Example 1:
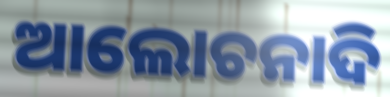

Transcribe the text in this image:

ଆଲୋଚନାଦି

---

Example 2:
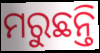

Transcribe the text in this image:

ମରୁଛନ୍ତି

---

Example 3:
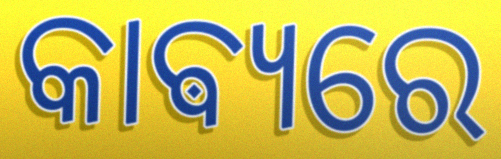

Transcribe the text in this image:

କାଵ୍ଯରେ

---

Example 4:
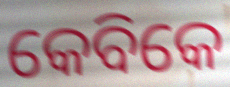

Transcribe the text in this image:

କେବିକେ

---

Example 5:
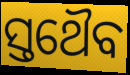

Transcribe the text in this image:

ସ୍ତଥୈବ